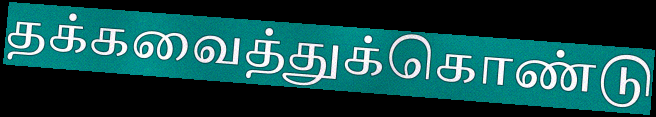
தக்கவைத்துக்கொண்டு